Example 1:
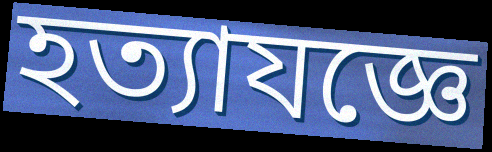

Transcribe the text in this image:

হত্যাযজ্ঞে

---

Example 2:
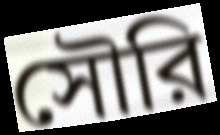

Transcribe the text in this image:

সৌরি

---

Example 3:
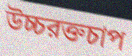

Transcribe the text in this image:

উচ্চরক্তচাপ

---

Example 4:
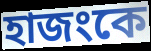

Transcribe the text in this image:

হাজংকে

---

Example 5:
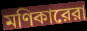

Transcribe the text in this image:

মণিকারেরা